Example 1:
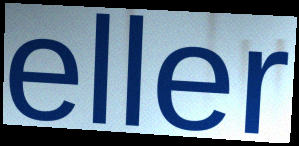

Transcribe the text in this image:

eller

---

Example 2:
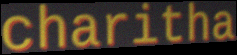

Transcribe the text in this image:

charitha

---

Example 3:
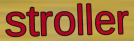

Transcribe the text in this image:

stroller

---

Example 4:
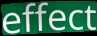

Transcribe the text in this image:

effect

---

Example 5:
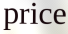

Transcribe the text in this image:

price